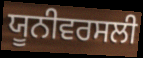
ਯੂਨੀਵਰਸਲੀ